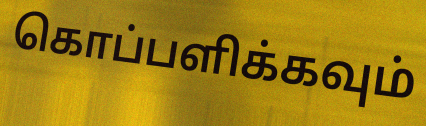
கொப்பளிக்கவும்